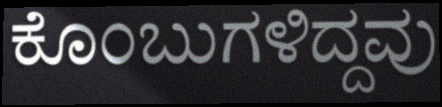
ಕೊಂಬುಗಳಿದ್ದವು